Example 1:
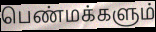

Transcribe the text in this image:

பெண்மக்களும்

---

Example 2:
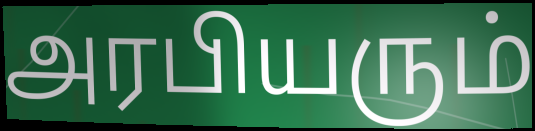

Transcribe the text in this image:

அரபியரும்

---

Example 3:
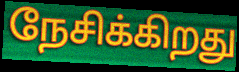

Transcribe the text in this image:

நேசிக்கிறது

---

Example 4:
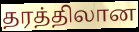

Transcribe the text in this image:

தரத்திலான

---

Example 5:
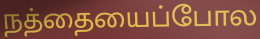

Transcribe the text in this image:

நத்தையைப்போல